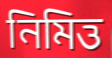
নিমিত্ত